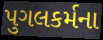
પુગલકર્મના